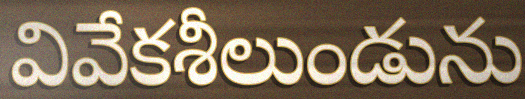
వివేకశీలుండును